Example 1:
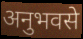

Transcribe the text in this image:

अनुभवसे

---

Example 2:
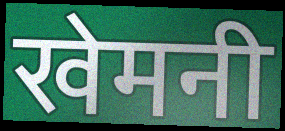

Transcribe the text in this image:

खेमनी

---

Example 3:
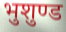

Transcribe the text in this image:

भुशुण्ड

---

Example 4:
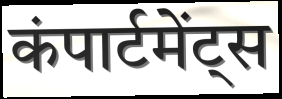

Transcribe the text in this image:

कंपार्टमेंट्स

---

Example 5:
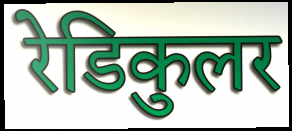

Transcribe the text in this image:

रेडिकुलर